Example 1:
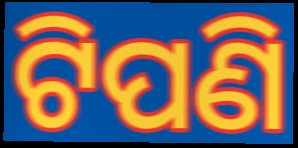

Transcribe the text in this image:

ଟିପଣି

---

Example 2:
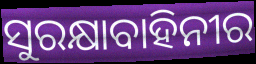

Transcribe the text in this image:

ସୁରକ୍ଷାବାହିନୀର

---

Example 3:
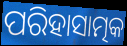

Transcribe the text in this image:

ପରିହାସାତ୍ମକ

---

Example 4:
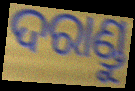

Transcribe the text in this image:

ଦରାଣ୍ଡୁ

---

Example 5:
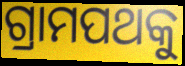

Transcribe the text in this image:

ଗ୍ରାମପଥକୁ